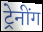
ट्रेनींग